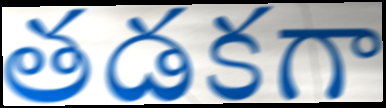
తడకగా